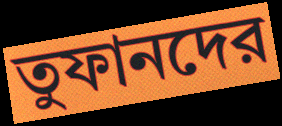
তুফানদের